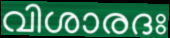
വിശാരദഃ